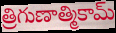
త్రిగుణాత్మికామ్